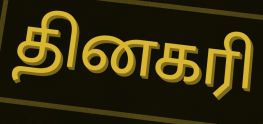
தினகரி